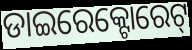
ଡାଇରେକ୍ଟୋରେଟ୍